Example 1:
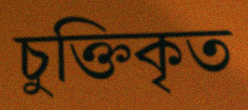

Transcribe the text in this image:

চুক্তিকৃত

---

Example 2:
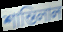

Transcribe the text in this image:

শান্তিলাল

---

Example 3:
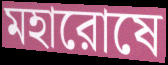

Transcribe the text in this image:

মহারোষে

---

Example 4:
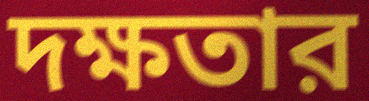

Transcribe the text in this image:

দক্ষতার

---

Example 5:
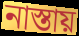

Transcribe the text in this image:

নাস্তায়